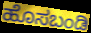
ಹೊಸಬಂಡಿ